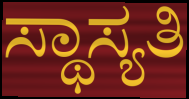
ಸ್ಥಾಸ್ಯತಿ